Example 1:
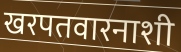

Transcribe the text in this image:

खरपतवारनाशी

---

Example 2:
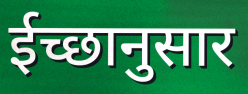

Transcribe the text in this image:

ईच्छानुसार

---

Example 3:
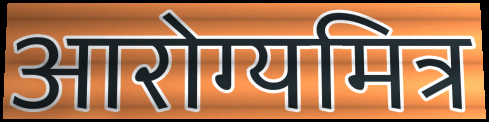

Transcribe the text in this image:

आरोग्यमित्र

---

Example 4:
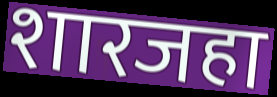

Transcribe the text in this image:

शारजहा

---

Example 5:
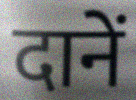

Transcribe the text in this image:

दानें